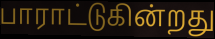
பாராட்டுகின்றது